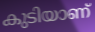
കുടിയാണ്